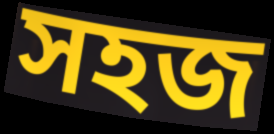
সহজ